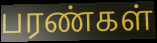
பரண்கள்